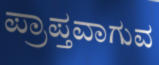
ಪ್ರಾಪ್ತವಾಗುವ